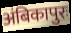
अंबिकापुरः